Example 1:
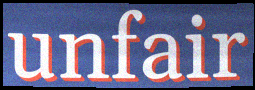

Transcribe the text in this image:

unfair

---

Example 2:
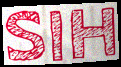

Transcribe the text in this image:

SIH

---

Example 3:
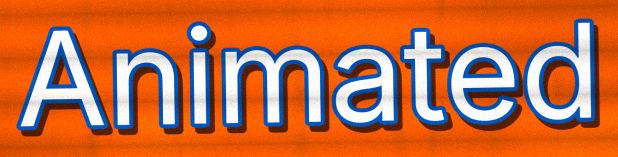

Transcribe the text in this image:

Animated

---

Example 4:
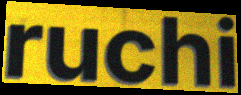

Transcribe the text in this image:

ruchi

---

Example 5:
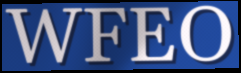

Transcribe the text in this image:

WFEO